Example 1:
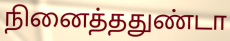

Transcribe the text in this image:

நினைத்ததுண்டா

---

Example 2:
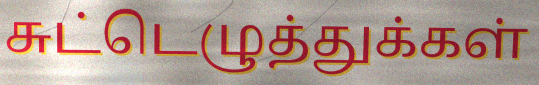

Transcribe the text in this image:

சுட்டெழுத்துக்கள்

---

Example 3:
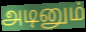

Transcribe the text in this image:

அடினும்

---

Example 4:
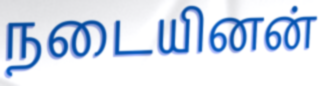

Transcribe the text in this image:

நடையினன்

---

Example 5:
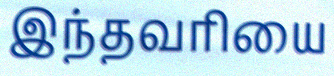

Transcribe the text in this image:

இந்தவரியை